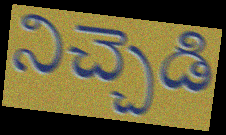
నిచ్చెడి